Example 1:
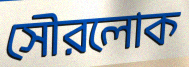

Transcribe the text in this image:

সৌরলোক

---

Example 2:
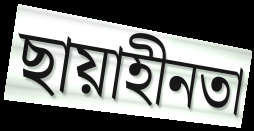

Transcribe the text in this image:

ছায়াহীনতা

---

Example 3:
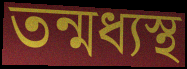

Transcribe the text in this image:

তন্মধ্যস্থ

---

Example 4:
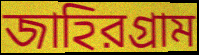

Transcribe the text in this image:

জাহিরগ্রাম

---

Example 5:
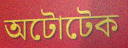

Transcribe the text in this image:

অটোটেক